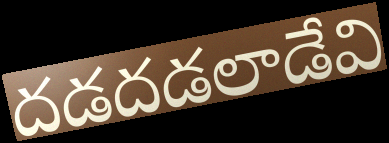
దడదడలాడేవి